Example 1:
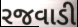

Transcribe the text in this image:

રજવાડી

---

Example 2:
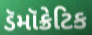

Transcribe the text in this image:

ડૅમૉક્રેટિક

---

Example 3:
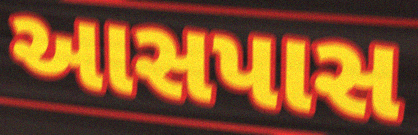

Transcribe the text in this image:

આસપાસ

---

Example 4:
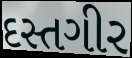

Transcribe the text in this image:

દસ્તગીર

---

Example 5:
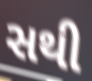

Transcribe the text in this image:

સથી